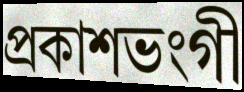
প্ৰকাশভংগী